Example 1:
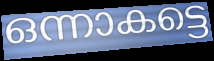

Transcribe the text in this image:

ഒന്നാകട്ടെ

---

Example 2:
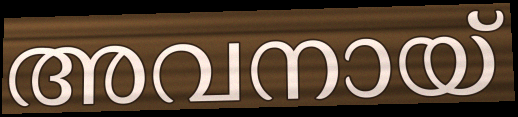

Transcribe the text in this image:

അവനായ്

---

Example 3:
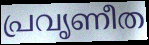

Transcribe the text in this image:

പ്രവൃണീത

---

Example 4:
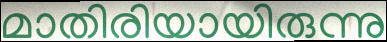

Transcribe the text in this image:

മാതിരിയായിരുന്നു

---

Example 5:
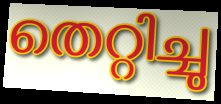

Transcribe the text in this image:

തെറ്റിച്ചു